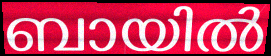
ബായിൽ